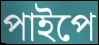
পাইপে